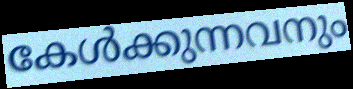
കേൾക്കുന്നവനും